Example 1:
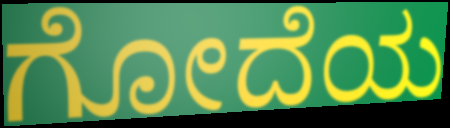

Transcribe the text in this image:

ಗೋದೆಯ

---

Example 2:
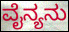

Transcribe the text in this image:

ವೈನ್ಯನು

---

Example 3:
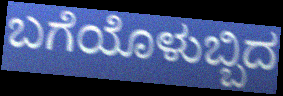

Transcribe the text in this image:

ಬಗೆಯೊಳುಬ್ಬಿದ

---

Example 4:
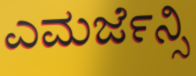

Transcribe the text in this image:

ಎಮರ್ಜೆನ್ಸಿ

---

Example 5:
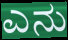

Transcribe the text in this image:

ಎನು